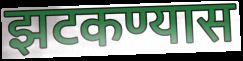
झटकण्यास